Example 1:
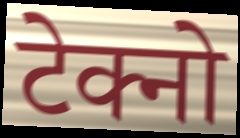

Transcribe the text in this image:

टेक्नो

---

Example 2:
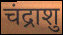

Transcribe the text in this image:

चंद्राशु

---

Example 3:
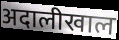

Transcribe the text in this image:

अदालीखाल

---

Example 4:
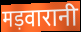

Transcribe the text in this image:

मड़वारानी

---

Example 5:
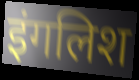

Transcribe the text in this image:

इंगलिश